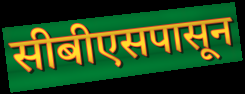
सीबीएसपासून